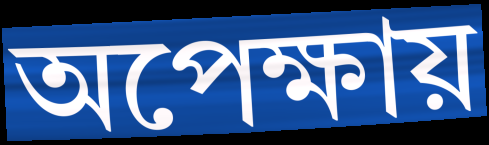
অপেক্ষায়